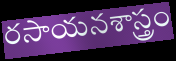
రసాయనశాస్త్రం